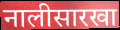
नालीसारखा